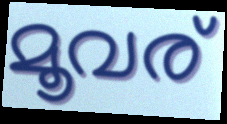
മൂവര്